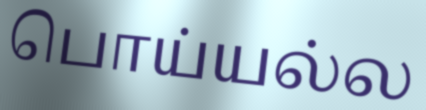
பொய்யல்ல